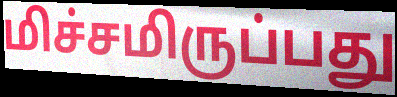
மிச்சமிருப்பது